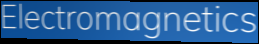
Electromagnetics